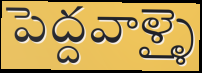
పెద్దవాళ్ళై